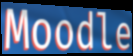
Moodle